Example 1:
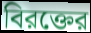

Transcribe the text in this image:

বিরক্তের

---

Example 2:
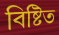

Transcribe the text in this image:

বিষ্টিত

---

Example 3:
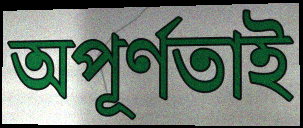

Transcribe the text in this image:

অপূর্ণতাই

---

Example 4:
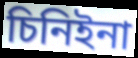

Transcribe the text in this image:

চিনিইনা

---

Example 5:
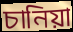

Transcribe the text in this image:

চানিয়া